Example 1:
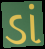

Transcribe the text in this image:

ડાં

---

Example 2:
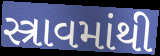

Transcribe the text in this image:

સ્ત્રાવમાંથી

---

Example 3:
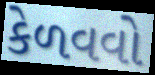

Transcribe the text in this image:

કેળવવો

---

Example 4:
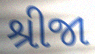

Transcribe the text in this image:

શ્રીજા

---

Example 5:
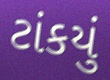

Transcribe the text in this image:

ટાંકયું